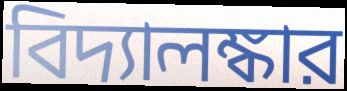
বিদ্যালঙ্কার